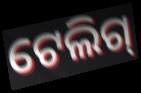
ଟେଲିଗ୍